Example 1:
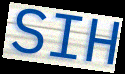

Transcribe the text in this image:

SIH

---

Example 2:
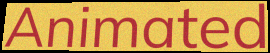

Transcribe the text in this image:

Animated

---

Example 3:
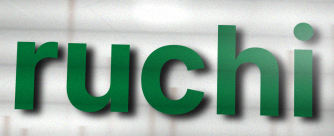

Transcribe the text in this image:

ruchi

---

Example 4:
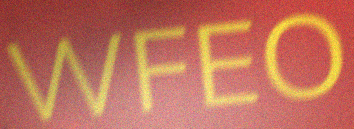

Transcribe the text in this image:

WFEO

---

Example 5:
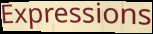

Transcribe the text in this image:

Expressions